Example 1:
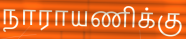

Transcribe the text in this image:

நாராயணிக்கு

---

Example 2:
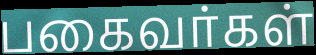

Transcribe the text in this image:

பகைவர்கள்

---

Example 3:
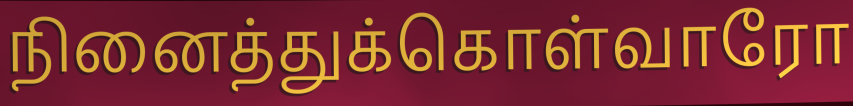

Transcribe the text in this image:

நினைத்துக்கொள்வாரோ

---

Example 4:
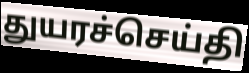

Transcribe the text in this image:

துயரச்செய்தி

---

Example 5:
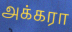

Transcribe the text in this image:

அக்கரா